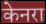
केनरा